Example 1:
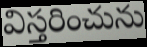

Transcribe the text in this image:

విస్తరించును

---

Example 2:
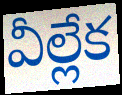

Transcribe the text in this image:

వీల్లేక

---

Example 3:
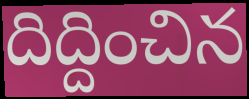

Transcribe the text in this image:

దిద్దించిన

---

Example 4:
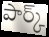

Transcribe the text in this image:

పార్క్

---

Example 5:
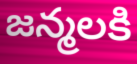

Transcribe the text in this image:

జన్మలకి